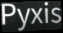
Pyxis